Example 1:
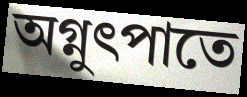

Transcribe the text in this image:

অগ্নুৎপাতে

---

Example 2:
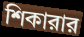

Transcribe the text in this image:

শিকারার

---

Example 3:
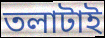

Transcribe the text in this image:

তলাটাই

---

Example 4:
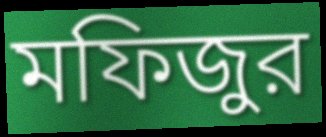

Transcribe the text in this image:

মফিজুর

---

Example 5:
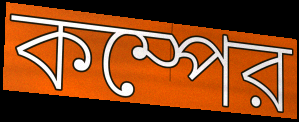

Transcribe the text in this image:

কম্পের